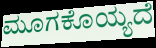
ಮೂಗಕೊಯ್ಯದೆ